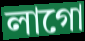
লাগো